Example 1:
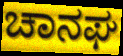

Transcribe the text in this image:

ಚಾನಘ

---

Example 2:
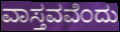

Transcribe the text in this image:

ವಾಸ್ತವವೆಂದು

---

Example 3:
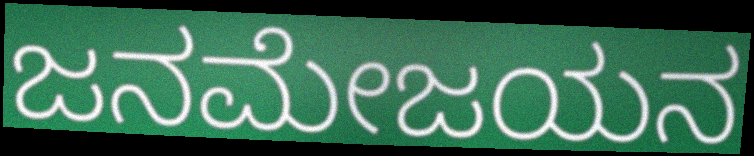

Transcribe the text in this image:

ಜನಮೇಜಯನ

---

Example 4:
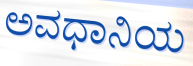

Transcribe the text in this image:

ಅವಧಾನಿಯ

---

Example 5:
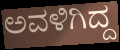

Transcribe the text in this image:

ಅವಳಿಗಿದ್ದ